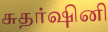
சுதர்ஷினி